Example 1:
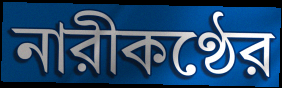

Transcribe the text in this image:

নারীকণ্ঠের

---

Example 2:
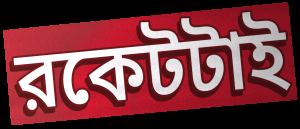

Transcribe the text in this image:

রকেটটাই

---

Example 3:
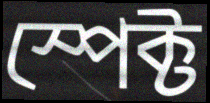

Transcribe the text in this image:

স্পেক্ট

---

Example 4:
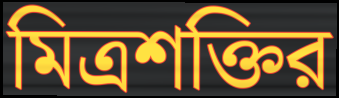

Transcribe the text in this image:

মিত্রশক্তির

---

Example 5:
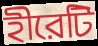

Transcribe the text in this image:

হীরেটি